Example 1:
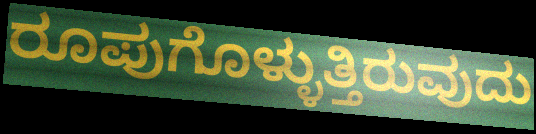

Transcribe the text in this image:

ರೂಪುಗೊಳ್ಳುತ್ತಿರುವುದು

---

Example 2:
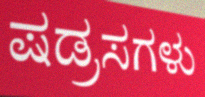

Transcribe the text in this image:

ಷಡ್ರಸಗಳು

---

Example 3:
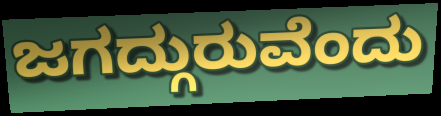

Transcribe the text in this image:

ಜಗದ್ಗುರುವೆಂದು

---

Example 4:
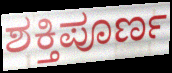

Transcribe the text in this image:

ಶಕ್ತಿಪೂರ್ಣ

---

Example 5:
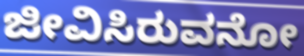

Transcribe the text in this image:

ಜೀವಿಸಿರುವನೋ